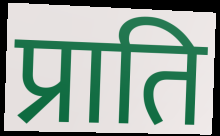
प्राति